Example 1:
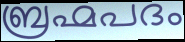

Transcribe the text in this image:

ബ്രഹ്മപദം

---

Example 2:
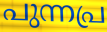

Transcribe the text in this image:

പുന്നപ്ര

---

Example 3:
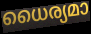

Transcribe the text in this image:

ധൈര്യമാ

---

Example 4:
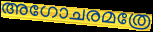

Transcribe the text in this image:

അഗോചരമത്രേ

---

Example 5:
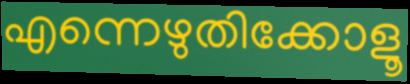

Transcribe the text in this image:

എന്നെഴുതിക്കോളൂ